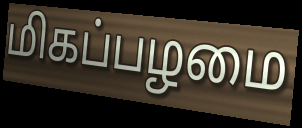
மிகப்பழமை